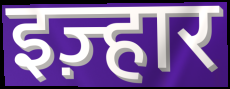
इज़्हार